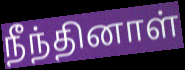
நீந்தினாள்